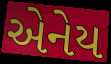
એનેય